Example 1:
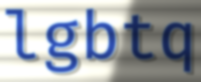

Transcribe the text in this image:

lgbtq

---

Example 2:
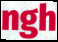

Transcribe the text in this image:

ngh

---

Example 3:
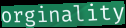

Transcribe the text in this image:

orginality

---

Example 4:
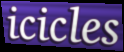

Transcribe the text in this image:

icicles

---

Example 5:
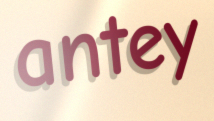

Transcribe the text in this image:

antey